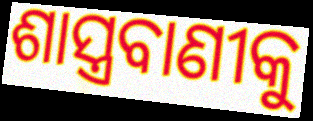
ଶାସ୍ତ୍ରବାଣୀକୁ